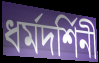
ধর্মদর্শিনী